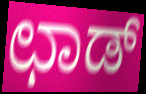
ಛಾಡ್